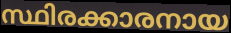
സ്ഥിരക്കാരനായ